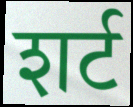
शर्ट